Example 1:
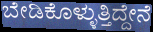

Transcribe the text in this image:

ಬೇಡಿಕೊಳ್ಳುತ್ತಿದ್ದೇನೆ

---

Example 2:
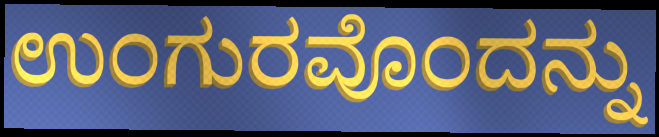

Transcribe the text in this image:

ಉಂಗುರವೊಂದನ್ನು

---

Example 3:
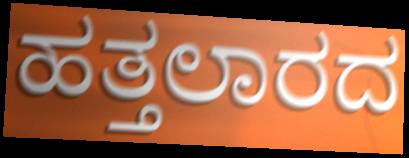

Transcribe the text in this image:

ಹತ್ತಲಾರದ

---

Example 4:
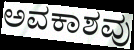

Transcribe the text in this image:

ಅವಕಾಶವು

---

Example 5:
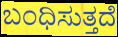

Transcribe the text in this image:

ಬಂಧಿಸುತ್ತದೆ